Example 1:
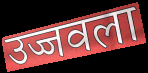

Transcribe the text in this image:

उज्जवला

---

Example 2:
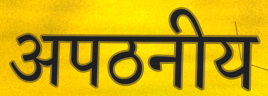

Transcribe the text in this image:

अपठनीय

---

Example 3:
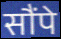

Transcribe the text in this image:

सौंपे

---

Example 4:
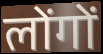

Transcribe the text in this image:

लोंगों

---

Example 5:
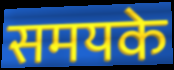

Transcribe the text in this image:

समयके